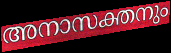
അനാസക്തനും